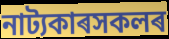
নাট্যকাৰসকলৰ